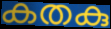
കതകു